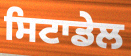
ਸਿਟਾਡੇਲ